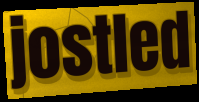
jostled